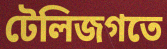
টেলিজগতে